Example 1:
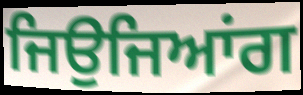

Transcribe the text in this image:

ਜਿਉਜਿਆਂਗ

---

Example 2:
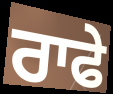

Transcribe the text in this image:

ਰਾਫੇ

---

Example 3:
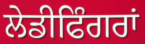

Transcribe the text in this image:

ਲੇਡੀਫਿੰਗਰਾਂ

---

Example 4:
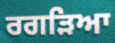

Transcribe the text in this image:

ਰਗੜਿਆ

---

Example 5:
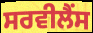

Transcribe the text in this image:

ਸਰਵੀਲੈਂਸ